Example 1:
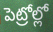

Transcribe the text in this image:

పెట్రోల్లో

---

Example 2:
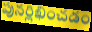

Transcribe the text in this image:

పునర్లిఖించడం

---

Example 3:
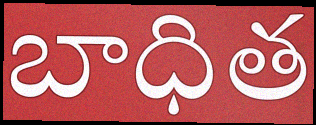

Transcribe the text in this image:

బాధిత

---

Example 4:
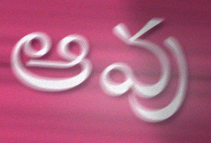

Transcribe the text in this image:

ఆవు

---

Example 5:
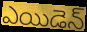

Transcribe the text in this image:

ఎయిడెన్